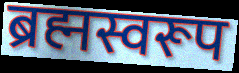
ब्रह्मस्वरूप